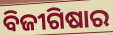
ବିଜୀଗିଷାର